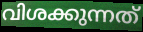
വിശക്കുന്നത്